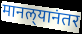
मानल्यानंतर